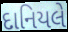
દાનિયલે